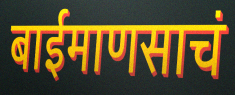
बाईमाणसाचं